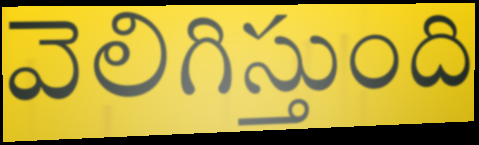
వెలిగిస్తుంది